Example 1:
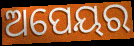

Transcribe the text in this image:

ଅପେୟର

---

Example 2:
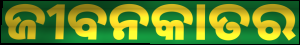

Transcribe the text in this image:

ଜୀବନକାତର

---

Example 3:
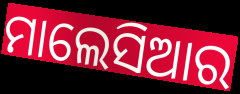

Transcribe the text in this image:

ମାଲେସିଆର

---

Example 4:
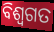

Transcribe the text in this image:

ବିଶ୍ୱଗତ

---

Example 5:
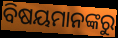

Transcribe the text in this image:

ବିଷୟମାନଙ୍କରୁ